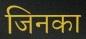
जिनका